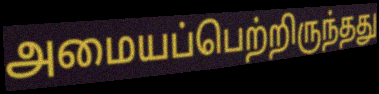
அமையப்பெற்றிருந்தது